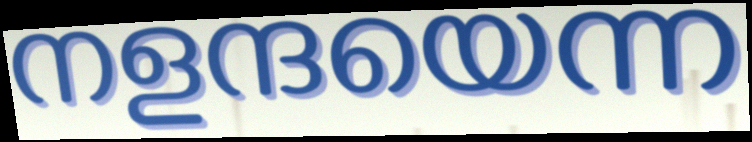
നളന്ദയെന്ന